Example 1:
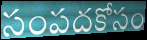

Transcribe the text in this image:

సంపదకోసం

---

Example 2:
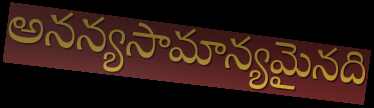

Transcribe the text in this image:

అనన్యసామాన్యమైనది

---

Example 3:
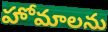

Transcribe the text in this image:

హోమాలను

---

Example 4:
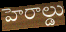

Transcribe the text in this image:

హెరాల్డు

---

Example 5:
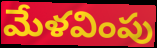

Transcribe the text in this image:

మేళవింపు